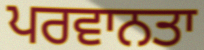
ਪਰਵਾਨਤਾ